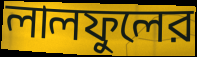
লালফুলের